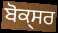
ਬੋਕ੍ਸਰ